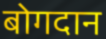
बोगदान